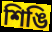
শিঙি